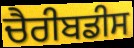
ਚੈਰੀਬਡੀਸ